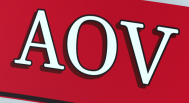
AOV